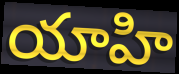
యాహి